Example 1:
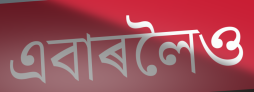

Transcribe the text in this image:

এবাৰলৈও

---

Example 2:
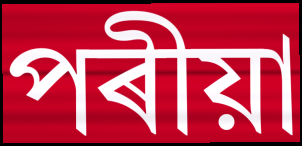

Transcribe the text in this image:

পৰীয়া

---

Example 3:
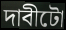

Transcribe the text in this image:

দাবীটো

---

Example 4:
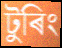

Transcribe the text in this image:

টুৰিং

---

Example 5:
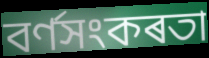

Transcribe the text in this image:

বৰ্ণসংকৰতা